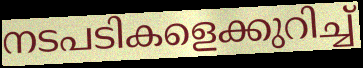
നടപടികളെക്കുറിച്ച്